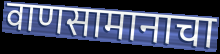
वाणसामानाचा